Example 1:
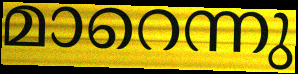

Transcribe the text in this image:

മാറെന്നു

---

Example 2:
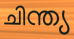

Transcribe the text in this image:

ചിന്ത്യ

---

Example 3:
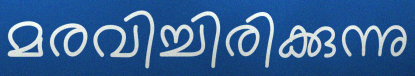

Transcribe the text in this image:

മരവിച്ചിരിക്കുന്നു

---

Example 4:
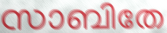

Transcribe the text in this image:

സാബിതേ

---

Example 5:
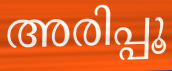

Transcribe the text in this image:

അരിപ്പൂ